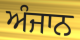
ਅੰਜਾਨ